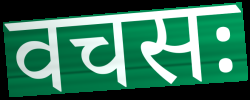
वचसः